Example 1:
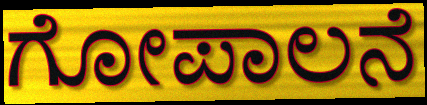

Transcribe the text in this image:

ಗೋಪಾಲನೆ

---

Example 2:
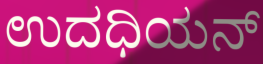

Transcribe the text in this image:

ಉದಧಿಯನ್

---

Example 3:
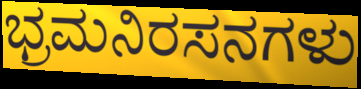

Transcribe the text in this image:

ಭ್ರಮನಿರಸನಗಳು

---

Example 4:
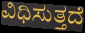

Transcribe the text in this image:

ವಿಧಿಸುತ್ತದೆ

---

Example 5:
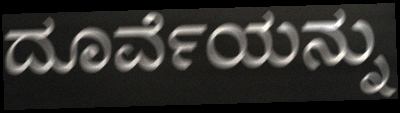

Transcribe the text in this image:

ದೂರ್ವೆಯನ್ನು